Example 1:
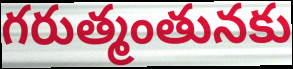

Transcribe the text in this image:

గరుత్మంతునకు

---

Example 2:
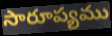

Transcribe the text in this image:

సారూప్యము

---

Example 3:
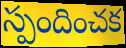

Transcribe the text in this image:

స్పందించక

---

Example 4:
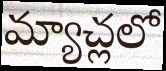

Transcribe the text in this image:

మ్యాచ్లలో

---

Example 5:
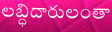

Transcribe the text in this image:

లబ్ధిదారులంతా